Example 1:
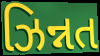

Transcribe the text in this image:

ઝિન્નત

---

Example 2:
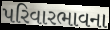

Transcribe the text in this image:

પરિવારભાવના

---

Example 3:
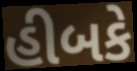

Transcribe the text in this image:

હીબકે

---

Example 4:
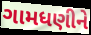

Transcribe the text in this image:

ગામધણીને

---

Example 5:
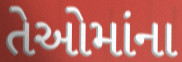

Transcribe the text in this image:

તેઓમાંના